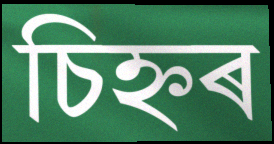
চিহ্নৰ